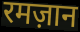
रमज़ान